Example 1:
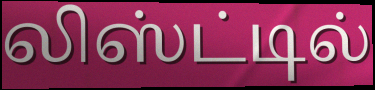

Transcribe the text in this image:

லிஸ்ட்டில்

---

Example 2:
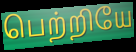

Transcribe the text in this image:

பெற்றியே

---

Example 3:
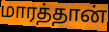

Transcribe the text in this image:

மாரத்தான்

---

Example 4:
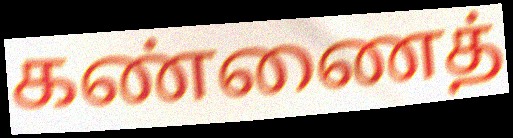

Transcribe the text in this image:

கண்ணைத்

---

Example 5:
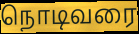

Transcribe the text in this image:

நொடிவரை